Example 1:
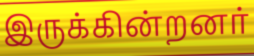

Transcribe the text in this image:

இருக்கின்றனர்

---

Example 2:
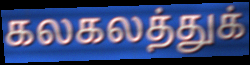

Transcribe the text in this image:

கலகலத்துக்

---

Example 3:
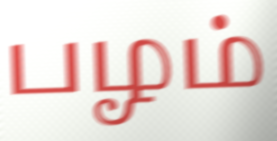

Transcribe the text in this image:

பழம்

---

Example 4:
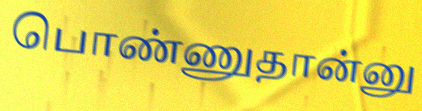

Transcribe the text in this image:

பொண்ணுதான்னு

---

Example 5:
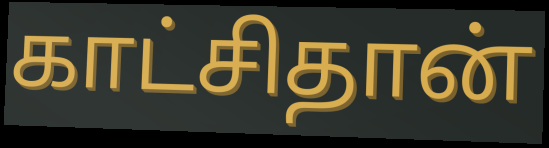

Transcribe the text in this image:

காட்சிதான்